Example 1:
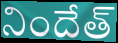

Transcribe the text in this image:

నిందేత్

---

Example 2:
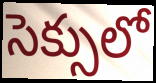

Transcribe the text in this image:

సెక్సులో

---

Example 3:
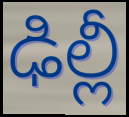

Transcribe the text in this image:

ఢిల్లీ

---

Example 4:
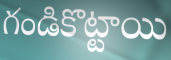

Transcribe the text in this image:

గండికొట్టాయి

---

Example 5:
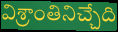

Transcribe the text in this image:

విశ్రాంతినిచ్చేది